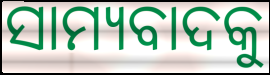
ସାମ୍ୟବାଦକୁ